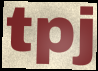
tpj